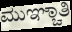
ಮುಞ್ಚಾತಿ